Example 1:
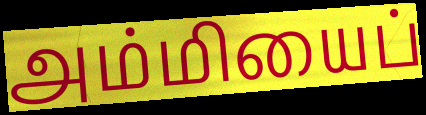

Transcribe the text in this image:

அம்மியைப்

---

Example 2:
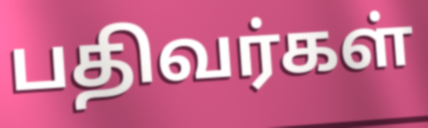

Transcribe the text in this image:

பதிவர்கள்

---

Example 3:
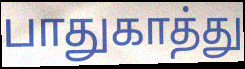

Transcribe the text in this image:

பாதுகாத்து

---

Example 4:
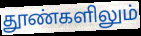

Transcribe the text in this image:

தூண்களிலும்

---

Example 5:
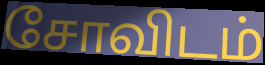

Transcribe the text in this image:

சோவிடம்